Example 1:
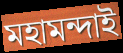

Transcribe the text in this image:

মহামন্দাই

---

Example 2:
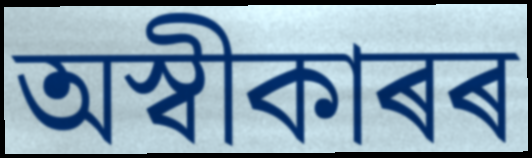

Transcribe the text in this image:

অস্বীকাৰৰ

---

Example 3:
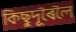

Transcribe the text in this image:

কিছুদূৰৈলৈ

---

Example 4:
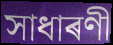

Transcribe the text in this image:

সাধাৰণী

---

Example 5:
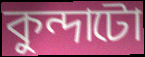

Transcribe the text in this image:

কুন্দাটো